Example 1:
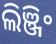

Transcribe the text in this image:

ଲିଞ୍ଜିଂ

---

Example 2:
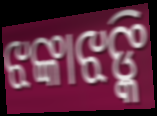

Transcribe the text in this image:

ଝଙ୍କାଝଙ୍କି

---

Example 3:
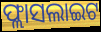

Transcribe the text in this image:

ଫ୍ଲାସଲାଇଟ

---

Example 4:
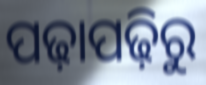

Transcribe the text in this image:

ପଢ଼ାପଢ଼ିରୁ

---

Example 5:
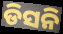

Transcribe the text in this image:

ଡିସନି